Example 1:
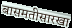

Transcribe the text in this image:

बासमतीसारखा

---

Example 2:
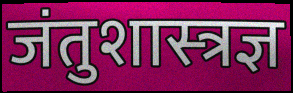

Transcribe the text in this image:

जंतुशास्त्रज्ञ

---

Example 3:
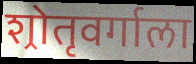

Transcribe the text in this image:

श्रोतृवर्गाला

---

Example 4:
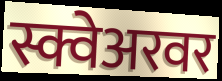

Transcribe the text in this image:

स्क्वेअरवर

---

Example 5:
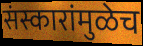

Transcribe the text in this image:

संस्कारांमुळेच